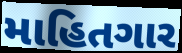
માહિતગાર